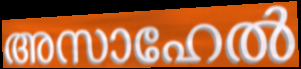
അസാഹേൽ